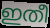
ഇതീ